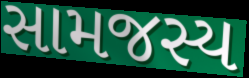
સામજસ્ય